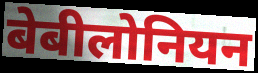
बेबीलोनियन